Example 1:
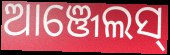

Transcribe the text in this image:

ଆଞ୍ଜେଲସ୍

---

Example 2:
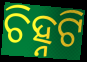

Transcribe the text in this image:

ଚିହ୍ନଟି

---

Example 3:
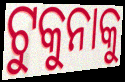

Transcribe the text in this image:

ଟୁକୁନାକୁ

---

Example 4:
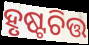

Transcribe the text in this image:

ହୃଷ୍ଟଚିତ୍ତ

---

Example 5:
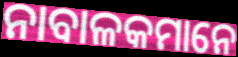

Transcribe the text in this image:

ନାବାଳକମାନେ